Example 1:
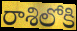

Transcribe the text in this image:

రాశిలోకి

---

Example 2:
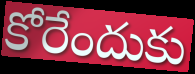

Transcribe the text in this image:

కోరేందుకు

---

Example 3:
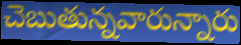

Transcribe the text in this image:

చెబుతున్నవారున్నారు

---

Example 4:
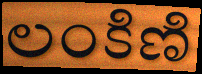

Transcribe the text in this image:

లంకిణి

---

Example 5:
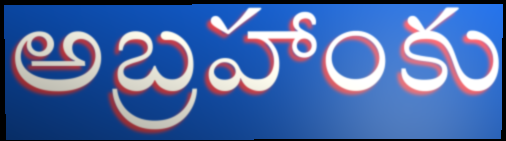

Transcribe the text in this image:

అబ్రహాంకు